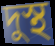
দুস্থ